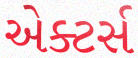
એક્ટર્સ